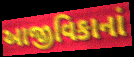
આજીવિકાનાં